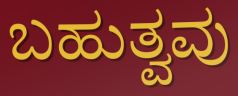
ಬಹುತ್ವವು